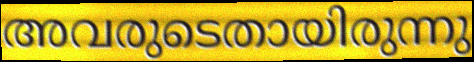
അവരുടെതായിരുന്നു